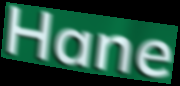
Hane